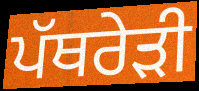
ਪੱਥਰੇੜੀ